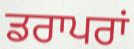
ਡਰਾਪਰਾਂ